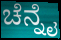
ಚೆನ್ನೈ